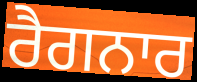
ਰੈਗਨਾਰ